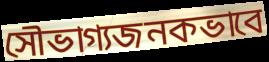
সৌভাগ্যজনকভাবে